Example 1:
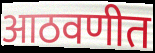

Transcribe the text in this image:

आठवणीत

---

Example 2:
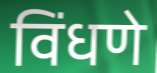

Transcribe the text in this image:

विंधणे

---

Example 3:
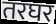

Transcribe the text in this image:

तरघर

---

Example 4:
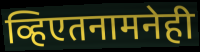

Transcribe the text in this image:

व्हिएतनामनेही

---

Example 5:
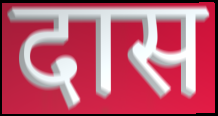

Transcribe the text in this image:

दास